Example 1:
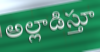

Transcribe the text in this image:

అల్లాడిస్తూ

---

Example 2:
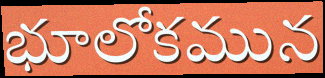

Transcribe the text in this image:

భూలోకమున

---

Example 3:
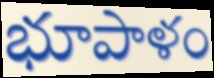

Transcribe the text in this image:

భూపాళం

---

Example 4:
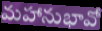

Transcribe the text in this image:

మహానుభావో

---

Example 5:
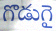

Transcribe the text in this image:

గొడుగై